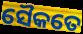
ସୈକତେ